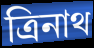
ত্রিনাথ